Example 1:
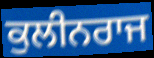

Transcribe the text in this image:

ਕੁਲੀਨਰਾਜ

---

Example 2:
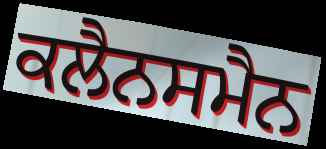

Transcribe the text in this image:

ਕਲੈਨਸਮੈਨ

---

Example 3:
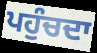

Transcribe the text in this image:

ਪਹੁੰਚਦਾ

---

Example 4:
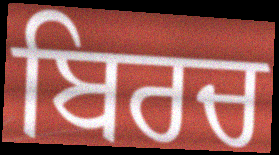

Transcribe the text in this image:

ਬਿਰਚ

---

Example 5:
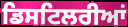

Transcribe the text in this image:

ਡਿਸਟਿਲਰੀਆਂ